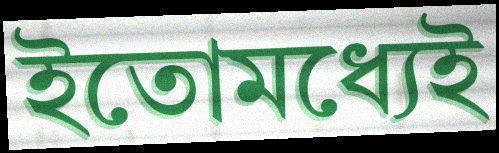
ইতোমধ্যেই